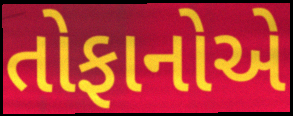
તોફાનોએ